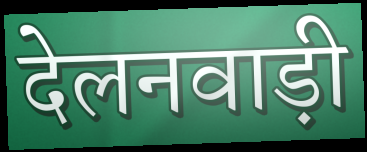
देलनवाड़ी